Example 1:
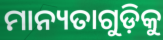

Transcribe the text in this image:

ମାନ୍ୟତାଗୁଡ଼ିକୁ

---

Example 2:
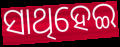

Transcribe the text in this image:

ସାଥିହେଇ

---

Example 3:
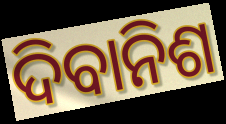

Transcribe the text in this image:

ଦିବାନିଶ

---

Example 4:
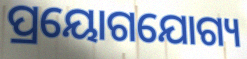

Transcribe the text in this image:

ପ୍ରୟୋଗଯୋଗ୍ୟ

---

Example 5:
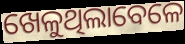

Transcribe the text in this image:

ଖେଳୁଥିଲାବେଳେ